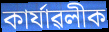
কাৰ্যাৱলীক